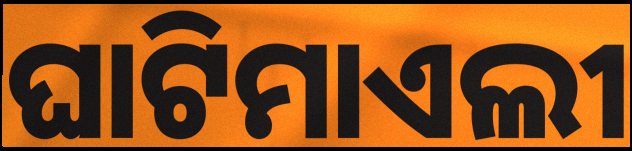
ଘାଟିମାଏଲୀ